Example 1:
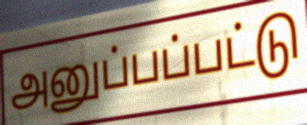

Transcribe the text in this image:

அனுப்பப்பட்டு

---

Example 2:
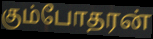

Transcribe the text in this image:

கும்போதரன்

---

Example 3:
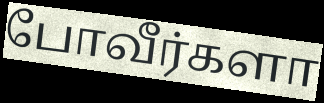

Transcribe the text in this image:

போவீர்களா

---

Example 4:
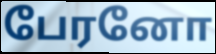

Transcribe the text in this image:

பேரனோ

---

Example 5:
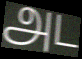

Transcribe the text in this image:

அட